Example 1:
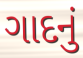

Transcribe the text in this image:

ગાદનું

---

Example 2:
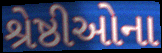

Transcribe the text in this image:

શ્રેષ્ઠીઓના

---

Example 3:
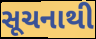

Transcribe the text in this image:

સૂચનાથી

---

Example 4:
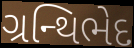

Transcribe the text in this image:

ગ્રન્થિભેદ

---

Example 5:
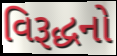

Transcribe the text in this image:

વિરૂદ્ધનો